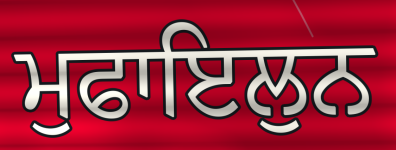
ਮੁਫਾਇਲੁਨ